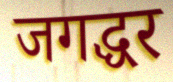
जगद्धर